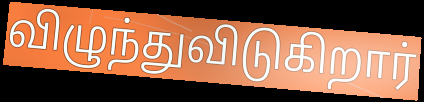
விழுந்துவிடுகிறார்